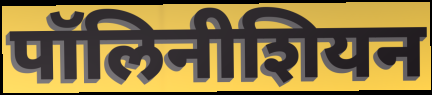
पॉलिनीशियन